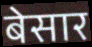
बेसार